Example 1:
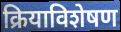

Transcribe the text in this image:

क्रियाविशेषण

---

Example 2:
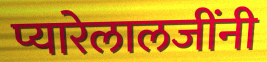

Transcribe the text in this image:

प्यारेलालजींनी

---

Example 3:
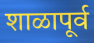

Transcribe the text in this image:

शाळापूर्व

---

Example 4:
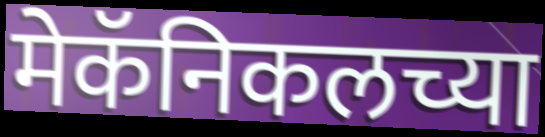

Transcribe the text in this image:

मेकॅनिकलच्या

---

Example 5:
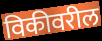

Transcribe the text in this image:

विकीवरील